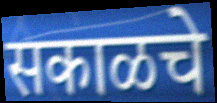
सकाळचे